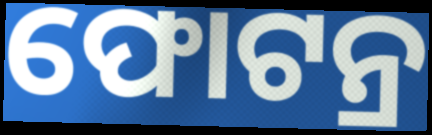
ଫୋଟନ୍ର